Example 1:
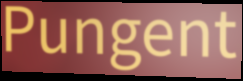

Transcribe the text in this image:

Pungent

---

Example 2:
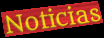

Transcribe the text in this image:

Noticias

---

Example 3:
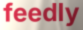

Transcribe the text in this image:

feedly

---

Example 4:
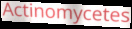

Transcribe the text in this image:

Actinomycetes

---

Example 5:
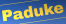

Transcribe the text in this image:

Paduke